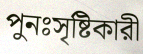
পুনঃসৃষ্টিকারী